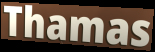
Thamas